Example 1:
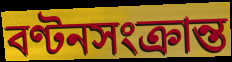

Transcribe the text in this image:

বণ্টনসংক্রান্ত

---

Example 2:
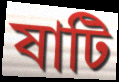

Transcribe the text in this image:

ষাটি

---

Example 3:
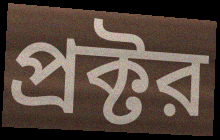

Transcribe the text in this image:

প্রক্টর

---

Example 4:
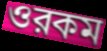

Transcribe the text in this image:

ওরকম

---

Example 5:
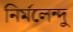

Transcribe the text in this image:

নির্মলেন্দু